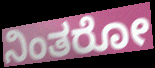
ನಿಂತರೋ